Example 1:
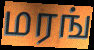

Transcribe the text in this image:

மரங்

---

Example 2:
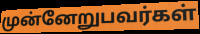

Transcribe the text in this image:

முன்னேறுபவர்கள்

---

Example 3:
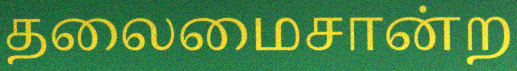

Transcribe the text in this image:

தலைமைசான்ற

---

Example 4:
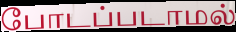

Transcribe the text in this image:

போடப்படாமல்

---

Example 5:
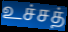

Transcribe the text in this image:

உச்சத்